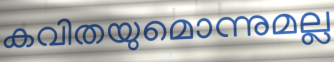
കവിതയുമൊന്നുമല്ല